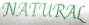
NATURAL